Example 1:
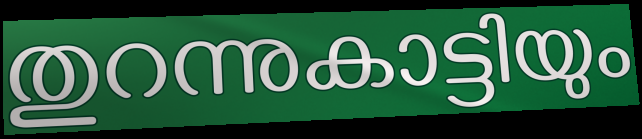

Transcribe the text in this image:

തുറന്നുകാട്ടിയും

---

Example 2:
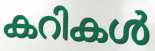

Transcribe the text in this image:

കറികൾ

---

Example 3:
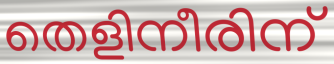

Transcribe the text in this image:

തെളിനീരിന്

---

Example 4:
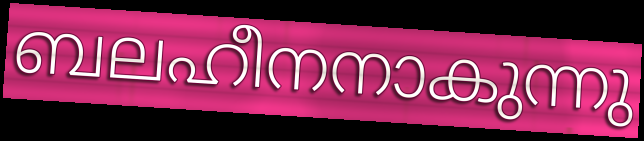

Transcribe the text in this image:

ബലഹീനനാകുന്നു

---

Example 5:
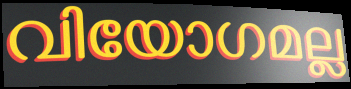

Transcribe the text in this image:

വിയോഗമല്ല